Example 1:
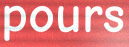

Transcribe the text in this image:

pours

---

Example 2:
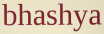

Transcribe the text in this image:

bhashya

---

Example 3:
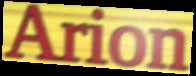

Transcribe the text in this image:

Arion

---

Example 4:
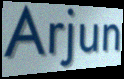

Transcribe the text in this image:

Arjun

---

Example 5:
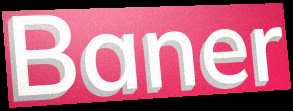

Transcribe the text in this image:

Baner